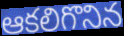
ఆకలిగొనిన